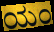
ಯಂ